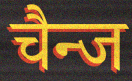
चैन्ज